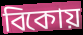
বিকোয়